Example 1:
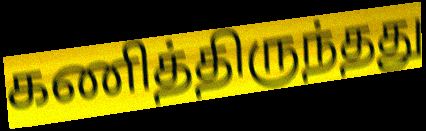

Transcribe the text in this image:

கணித்திருந்தது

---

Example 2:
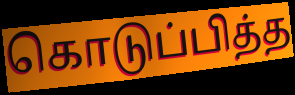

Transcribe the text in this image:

கொடுப்பித்த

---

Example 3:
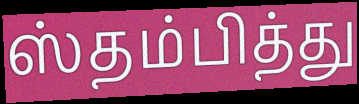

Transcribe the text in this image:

ஸ்தம்பித்து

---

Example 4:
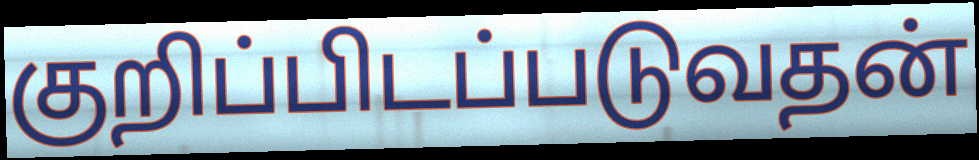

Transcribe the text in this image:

குறிப்பிடப்படுவதன்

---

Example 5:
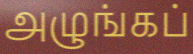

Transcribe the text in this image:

அழுங்கப்